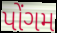
પોંગમ